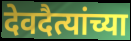
देवदैत्यांच्या